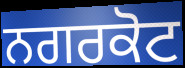
ਨਗਰਕੋਟ